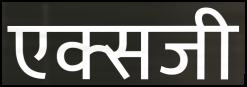
एक्सजी